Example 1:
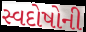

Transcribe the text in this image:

સ્વદોષોની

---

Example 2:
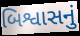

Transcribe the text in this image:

બિશ્વાસનું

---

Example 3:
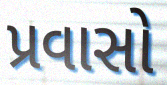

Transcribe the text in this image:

પ્રવાસો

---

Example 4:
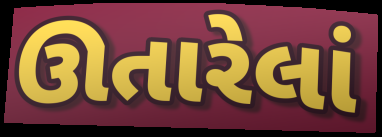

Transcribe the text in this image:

ઊતારેલાં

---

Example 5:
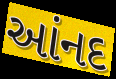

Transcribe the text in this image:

આંનદ